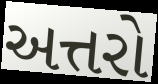
અત્તરો